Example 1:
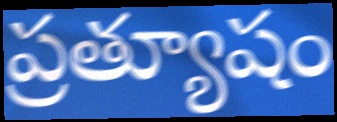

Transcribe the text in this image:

ప్రత్యూషం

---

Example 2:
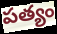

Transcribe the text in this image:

పత్యం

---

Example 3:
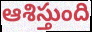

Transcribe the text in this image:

ఆశిస్తుంది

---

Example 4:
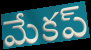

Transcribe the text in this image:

మేకప్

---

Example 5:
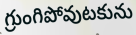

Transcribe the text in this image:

గ్రుంగిపోవుటకును